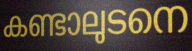
കണ്ടാലുടനെ